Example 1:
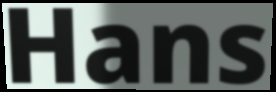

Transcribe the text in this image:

Hans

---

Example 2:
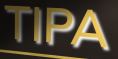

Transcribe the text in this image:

TIPA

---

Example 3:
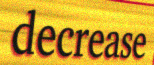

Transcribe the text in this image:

decrease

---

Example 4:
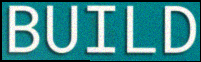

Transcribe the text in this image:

BUILD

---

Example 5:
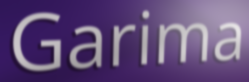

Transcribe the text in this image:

Garima